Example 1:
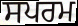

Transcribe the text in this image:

ਸਪਰਮ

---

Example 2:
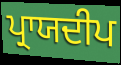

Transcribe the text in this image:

ਪ੍ਰਾਯਦੀਪ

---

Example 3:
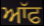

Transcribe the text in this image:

ਆੱਫ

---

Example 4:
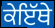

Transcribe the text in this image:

ਕੇਇੱਥੇ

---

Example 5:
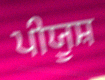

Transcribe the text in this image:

ਪੀਯੂਸ਼